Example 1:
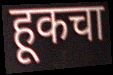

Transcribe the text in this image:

हूकचा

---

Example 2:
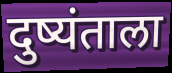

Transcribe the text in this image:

दुष्यंताला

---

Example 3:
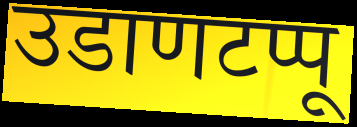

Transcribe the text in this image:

उडाणटप्पू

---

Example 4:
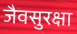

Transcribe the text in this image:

जैवसुरक्षा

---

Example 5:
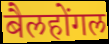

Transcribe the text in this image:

बैलहोंगल